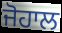
ਜੋਹਾਲ